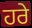
ਹਰੇ